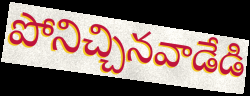
పోనిచ్చినవాడేడి